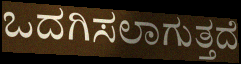
ಒದಗಿಸಲಾಗುತ್ತದೆ